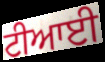
ਟੀਆਈ